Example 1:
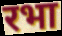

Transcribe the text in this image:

रभा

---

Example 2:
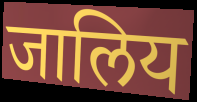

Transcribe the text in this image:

जालिय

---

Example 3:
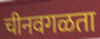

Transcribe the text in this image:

चीनवगळता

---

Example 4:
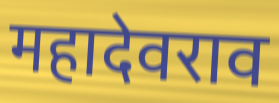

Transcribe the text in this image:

महादेवराव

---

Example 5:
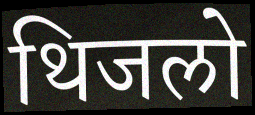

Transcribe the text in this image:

थिजलो